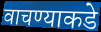
वाचण्याकडे